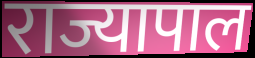
राज्यापाल